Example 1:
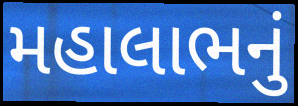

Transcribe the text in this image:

મહાલાભનું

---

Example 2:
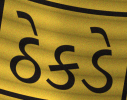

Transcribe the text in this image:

ઠેકડે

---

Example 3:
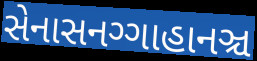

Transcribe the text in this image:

સેનાસનગ્ગાહાનઞ્ચ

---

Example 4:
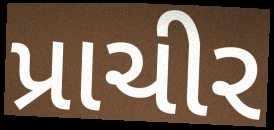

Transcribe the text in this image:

પ્રાચીર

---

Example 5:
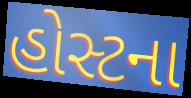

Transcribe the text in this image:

હોસ્ટના